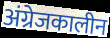
अंग्रेजकालीन